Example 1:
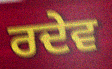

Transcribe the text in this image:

ਰਦੇਵ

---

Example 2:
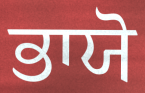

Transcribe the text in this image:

ਭਾਯੋ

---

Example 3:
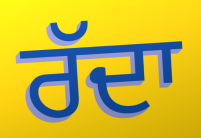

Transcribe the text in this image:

ਰੱਦਾ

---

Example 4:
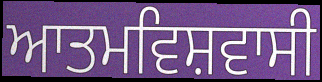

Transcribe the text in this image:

ਆਤਮਵਿਸ਼ਵਾਸੀ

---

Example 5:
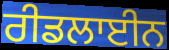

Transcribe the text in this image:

ਰੀਡਲਾਈਨ